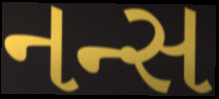
નન્સ